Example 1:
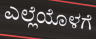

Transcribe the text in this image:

ಎಲ್ಲೆಯೊಳಗೆ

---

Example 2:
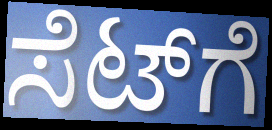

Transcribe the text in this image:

ಸೆಟ್‌ಗೆ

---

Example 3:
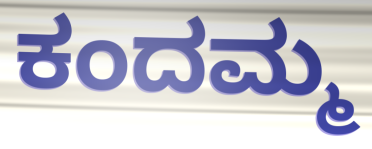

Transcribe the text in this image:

ಕಂದಮ್ಮ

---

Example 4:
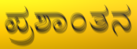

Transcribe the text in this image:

ಪ್ರಶಾಂತನ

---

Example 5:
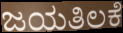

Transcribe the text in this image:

ಜಯತಿಲಕೆ